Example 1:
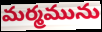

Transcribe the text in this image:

మర్మమును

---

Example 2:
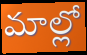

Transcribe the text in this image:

మాల్లో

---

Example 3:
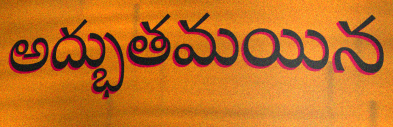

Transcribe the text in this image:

అద్భుతమయిన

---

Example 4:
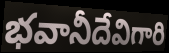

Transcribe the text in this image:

భవానీదేవిగారి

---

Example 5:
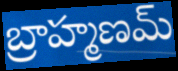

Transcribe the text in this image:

బ్రాహ్మణమ్